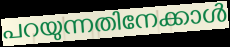
പറയുന്നതിനേക്കാൾ